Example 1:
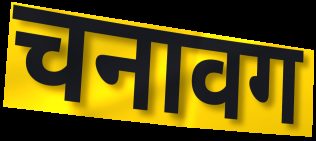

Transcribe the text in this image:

चनावग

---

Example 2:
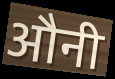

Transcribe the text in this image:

औनी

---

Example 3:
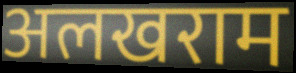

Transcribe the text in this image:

अलखराम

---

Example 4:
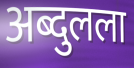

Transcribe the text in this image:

अब्दुलला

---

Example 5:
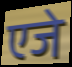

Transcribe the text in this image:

एजे